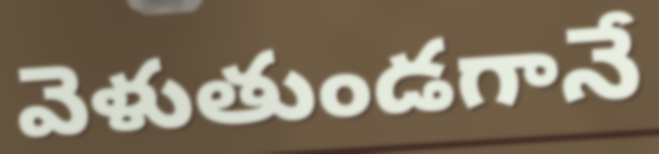
వెళుతుండగానే